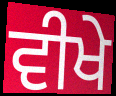
ਵੀਖੇ